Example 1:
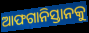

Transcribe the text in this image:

ଆଫଗାନିସ୍ତାନକୁ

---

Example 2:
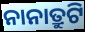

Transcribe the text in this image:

ନାନାତ୍ରୁଟି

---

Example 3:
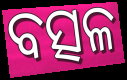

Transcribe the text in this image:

ବତ୍ସଳ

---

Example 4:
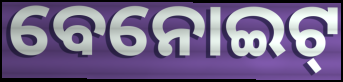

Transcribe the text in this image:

ବେନୋଇଟ୍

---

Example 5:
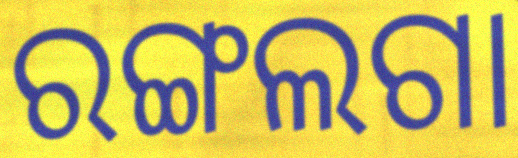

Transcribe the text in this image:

ରଙ୍ଗଲଗା